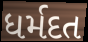
ધર્મદત